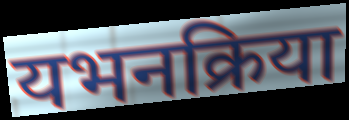
यभनक्रिया